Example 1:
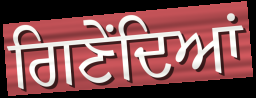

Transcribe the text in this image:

ਗਿਣੇਂਦਿਆਂ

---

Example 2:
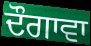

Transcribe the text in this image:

ਦੌਗਾਵਾ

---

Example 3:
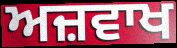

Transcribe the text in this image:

ਅਜ਼ਵਾਖ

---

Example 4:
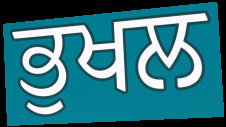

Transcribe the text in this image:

ਭੁਖਲ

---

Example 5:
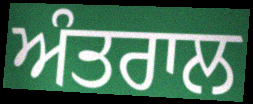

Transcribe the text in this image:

ਅੰਤਰਾਲ